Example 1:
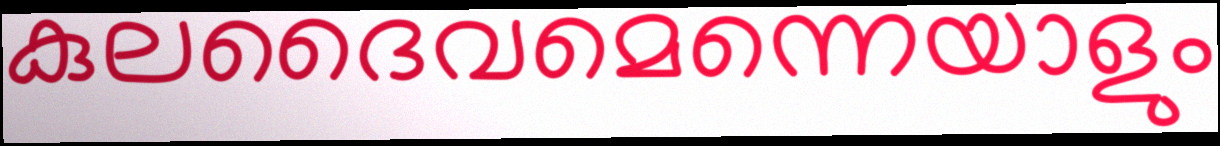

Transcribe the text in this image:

കുലദൈവമെന്നെയാളും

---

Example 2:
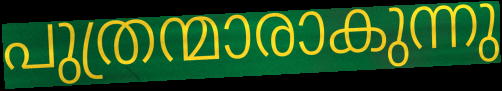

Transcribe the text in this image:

പുത്രന്മാരാകുന്നു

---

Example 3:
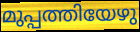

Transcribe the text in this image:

മുപ്പത്തിയേഴു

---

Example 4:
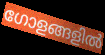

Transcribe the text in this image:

ഗോളങ്ങളിൽ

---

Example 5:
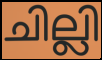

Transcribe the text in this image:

ചില്ലി